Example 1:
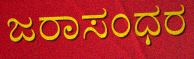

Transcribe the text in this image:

ಜರಾಸಂಧರ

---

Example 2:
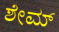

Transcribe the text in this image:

ಶೇಮ್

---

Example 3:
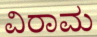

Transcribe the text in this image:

ವಿರಾಮ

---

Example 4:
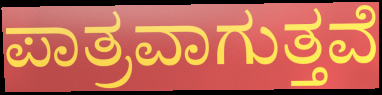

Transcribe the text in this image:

ಪಾತ್ರವಾಗುತ್ತವೆ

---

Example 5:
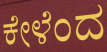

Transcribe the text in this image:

ಕೇಳೆಂದ